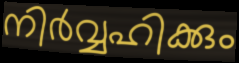
നിർവ്വഹിക്കും